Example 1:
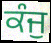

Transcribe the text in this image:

ਕੰਜੁ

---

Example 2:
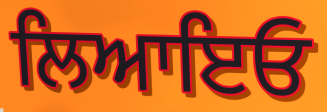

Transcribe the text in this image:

ਲਿਆਇਓ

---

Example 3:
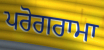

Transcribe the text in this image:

ਪਰੋਗਰਾਮਾ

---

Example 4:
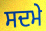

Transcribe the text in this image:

ਸਦਮੇ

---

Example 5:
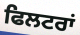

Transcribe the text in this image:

ਫਿਲਟਰਾਂ